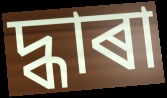
দ্ধাৰা